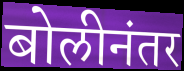
बोलीनंतर